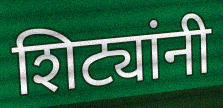
शिट्यांनी